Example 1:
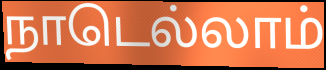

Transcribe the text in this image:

நாடெல்லாம்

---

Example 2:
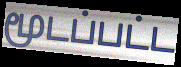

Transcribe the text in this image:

மூடப்பட்ட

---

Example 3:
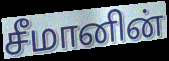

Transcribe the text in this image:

சீமானின்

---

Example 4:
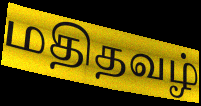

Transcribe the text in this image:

மதிதவழ்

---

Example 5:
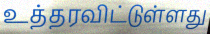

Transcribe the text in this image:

உத்தரவிட்டுள்ளது